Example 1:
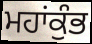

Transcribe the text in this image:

ਮਹਾਂਕੁੰਭ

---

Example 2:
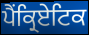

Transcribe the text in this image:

ਪੈਂਕ੍ਰਿਏਟਿਕ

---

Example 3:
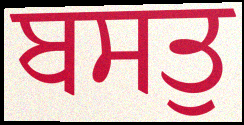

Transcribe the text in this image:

ਬਸਤੁ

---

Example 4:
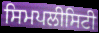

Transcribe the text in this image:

ਸਿਮਪਲੀਸਿਟੀ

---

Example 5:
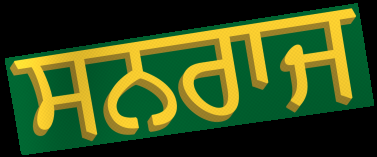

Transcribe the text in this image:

ਸਨਰਾਜ